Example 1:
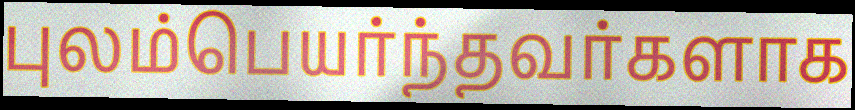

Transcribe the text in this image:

புலம்பெயர்ந்தவர்களாக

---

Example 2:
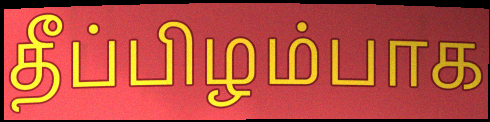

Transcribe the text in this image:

தீப்பிழம்பாக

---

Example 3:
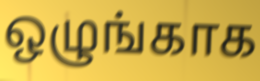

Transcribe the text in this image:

ஒழுங்காக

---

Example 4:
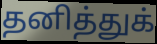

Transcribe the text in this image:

தனித்துக்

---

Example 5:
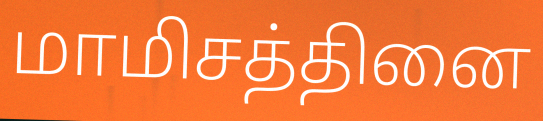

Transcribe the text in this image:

மாமிசத்தினை